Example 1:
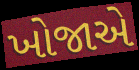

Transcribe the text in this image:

ખોજાએ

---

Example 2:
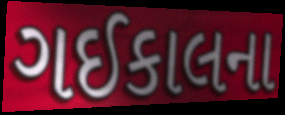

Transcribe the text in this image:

ગઈકાલના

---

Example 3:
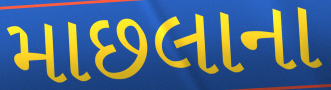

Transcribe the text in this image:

માછલાના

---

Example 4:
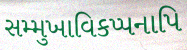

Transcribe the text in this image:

સમ્મુખાવિકપ્પનાપિ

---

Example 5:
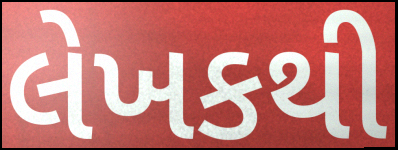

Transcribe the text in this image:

લેખકથી